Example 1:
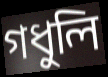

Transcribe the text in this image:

গধুলি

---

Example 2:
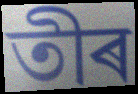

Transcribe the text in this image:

তীৰ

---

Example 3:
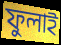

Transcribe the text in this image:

ফুলাই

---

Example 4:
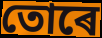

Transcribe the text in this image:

তোৰে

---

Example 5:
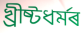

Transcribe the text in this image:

খ্ৰীষ্টধৰ্মৰ